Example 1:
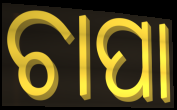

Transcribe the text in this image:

ଚାପା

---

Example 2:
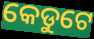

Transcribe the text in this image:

କେଡୁଟେ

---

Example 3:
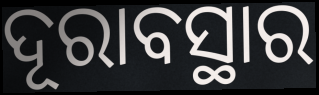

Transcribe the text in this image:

ଦୂରାବସ୍ଥାର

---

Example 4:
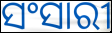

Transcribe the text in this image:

ସଂସାରୀ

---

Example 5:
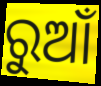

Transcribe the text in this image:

ରୁଆଁ